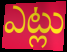
ఎట్లు